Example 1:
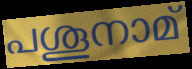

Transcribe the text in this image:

പശൂനാമ്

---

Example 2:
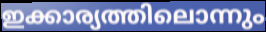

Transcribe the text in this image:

ഇക്കാര്യത്തിലൊന്നും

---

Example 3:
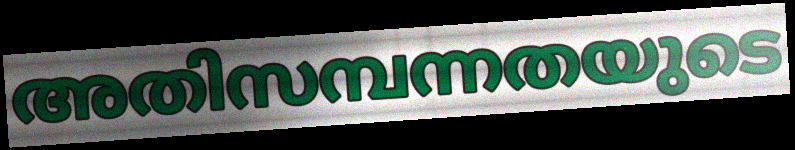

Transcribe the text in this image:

അതിസമ്പന്നതയുടെ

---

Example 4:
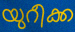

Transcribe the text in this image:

യുറീക്ക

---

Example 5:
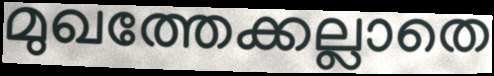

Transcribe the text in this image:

മുഖത്തേക്കല്ലാതെ